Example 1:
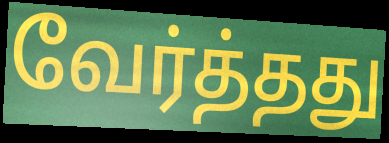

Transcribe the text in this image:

வேர்த்தது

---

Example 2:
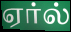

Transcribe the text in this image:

ஏர்ல்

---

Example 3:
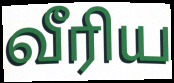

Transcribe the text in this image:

வீரிய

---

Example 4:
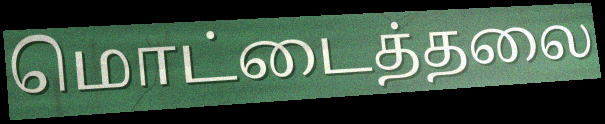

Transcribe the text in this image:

மொட்டைத்தலை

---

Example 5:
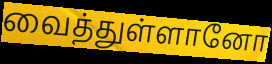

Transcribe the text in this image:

வைத்துள்ளானோ